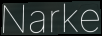
Narke